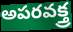
అపరవక్త్ర